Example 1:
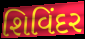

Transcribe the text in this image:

શિવિંદર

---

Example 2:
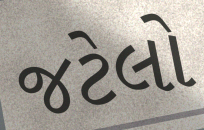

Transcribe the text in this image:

જટેલો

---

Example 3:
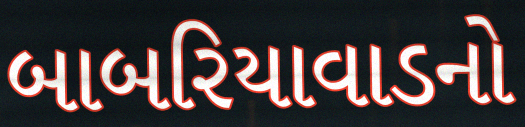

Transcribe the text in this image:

બાબરિયાવાડનો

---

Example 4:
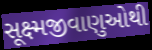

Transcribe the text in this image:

સૂક્ષ્મજીવાણુઓથી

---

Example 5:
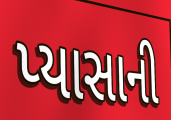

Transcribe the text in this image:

પ્યાસાની